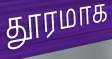
தூரமாக